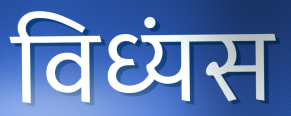
विध्यंस